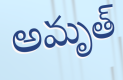
అమృత్